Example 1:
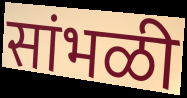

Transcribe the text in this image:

सांभळी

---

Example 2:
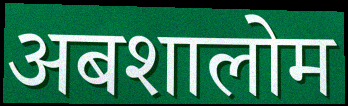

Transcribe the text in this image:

अबशालोम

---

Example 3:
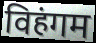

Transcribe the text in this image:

विहंगम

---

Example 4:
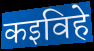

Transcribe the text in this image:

कइविहे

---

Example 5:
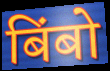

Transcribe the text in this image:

बिंबो